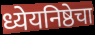
ध्येयनिष्ठेचा